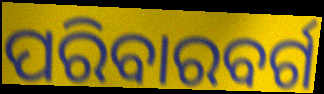
ପରିବାରବର୍ଗ